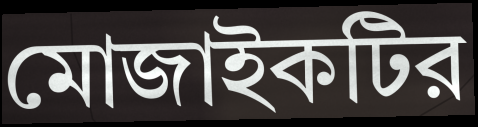
মোজাইকটির